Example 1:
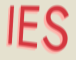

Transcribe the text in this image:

IES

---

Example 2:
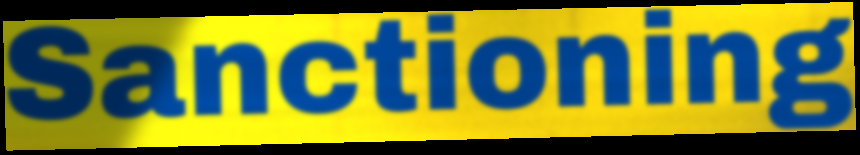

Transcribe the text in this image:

Sanctioning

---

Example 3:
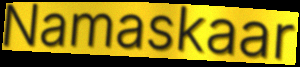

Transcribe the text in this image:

Namaskaar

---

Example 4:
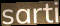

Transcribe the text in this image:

sarti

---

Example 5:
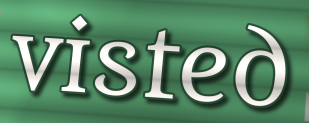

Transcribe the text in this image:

visted